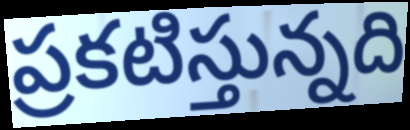
ప్రకటిస్తున్నది